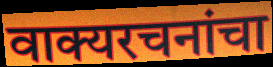
वाक्यरचनांचा